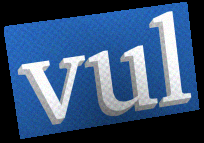
vul